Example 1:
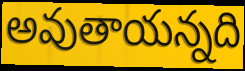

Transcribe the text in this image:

అవుతాయన్నది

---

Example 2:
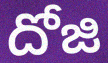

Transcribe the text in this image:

దోజి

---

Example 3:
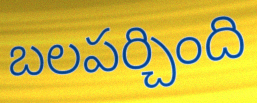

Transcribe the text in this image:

బలపర్చింది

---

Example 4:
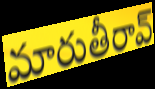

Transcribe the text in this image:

మారుతీరావ్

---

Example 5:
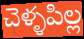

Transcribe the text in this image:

చెళ్ళపిల్ల